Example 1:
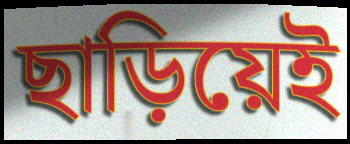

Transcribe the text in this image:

ছাড়িয়েই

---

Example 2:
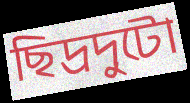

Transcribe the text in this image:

ছিদ্রদুটো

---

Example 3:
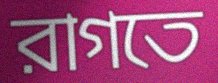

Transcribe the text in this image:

রাগতে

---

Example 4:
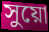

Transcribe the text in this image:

সুয়ো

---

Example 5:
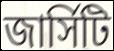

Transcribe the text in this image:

জার্সিটি